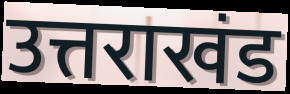
उत्तराखंड